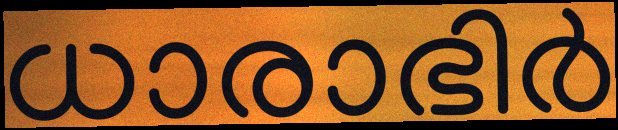
ധാരാഭിർ